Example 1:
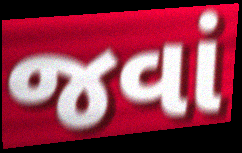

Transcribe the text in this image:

જવાં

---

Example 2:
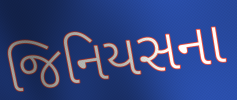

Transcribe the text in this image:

જિનિયસના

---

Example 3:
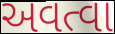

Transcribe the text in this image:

અવત્વા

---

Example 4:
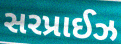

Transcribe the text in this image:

સરપ્રાઈઝ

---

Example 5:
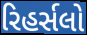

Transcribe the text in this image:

રિહર્સલો